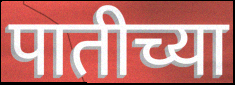
पातीच्या